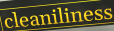
cleaniliness